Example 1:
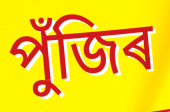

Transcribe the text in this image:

পুঁজিৰ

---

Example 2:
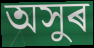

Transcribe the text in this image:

অসুৰ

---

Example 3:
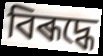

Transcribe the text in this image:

বিৰূদ্ধে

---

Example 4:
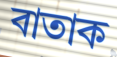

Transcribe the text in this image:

বাতাক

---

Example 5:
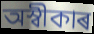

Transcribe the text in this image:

অস্বীকাৰ